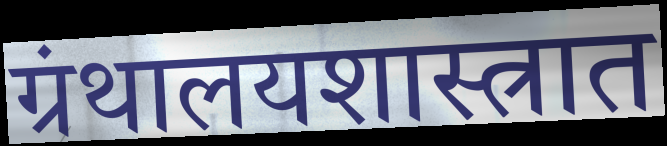
ग्रंथालयशास्त्रात